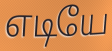
எடியே